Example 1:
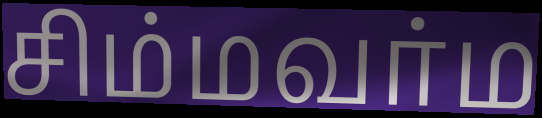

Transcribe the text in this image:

சிம்மவர்ம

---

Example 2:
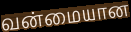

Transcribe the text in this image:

வன்மையான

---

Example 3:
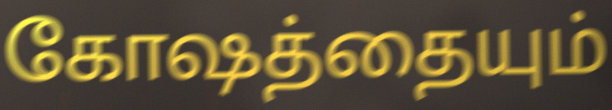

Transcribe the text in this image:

கோஷத்தையும்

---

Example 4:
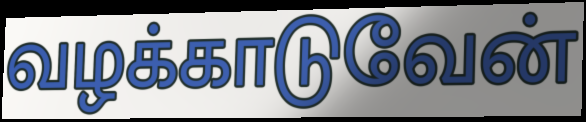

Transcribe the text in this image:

வழக்காடுவேன்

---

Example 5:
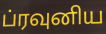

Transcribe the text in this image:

ப்ரவுனிய